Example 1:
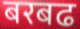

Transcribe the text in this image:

बरबढ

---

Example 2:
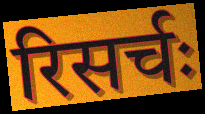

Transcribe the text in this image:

रिसर्चः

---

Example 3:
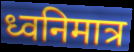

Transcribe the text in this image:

ध्वनिमात्र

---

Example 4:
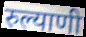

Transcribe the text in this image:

रुल्याणी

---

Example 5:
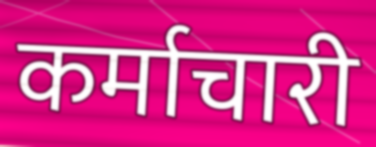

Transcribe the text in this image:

कर्माचारी